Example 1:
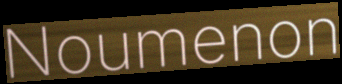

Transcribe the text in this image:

Noumenon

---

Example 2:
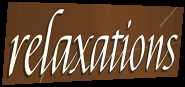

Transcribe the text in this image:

relaxations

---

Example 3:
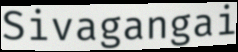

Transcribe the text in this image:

Sivagangai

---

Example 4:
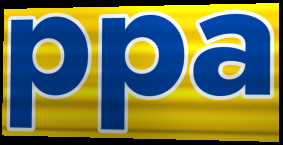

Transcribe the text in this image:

ppa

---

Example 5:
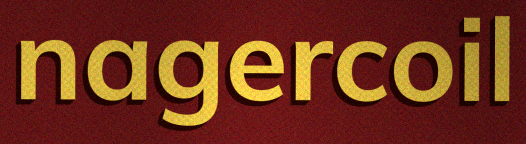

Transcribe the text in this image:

nagercoil